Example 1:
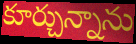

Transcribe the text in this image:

కూర్చున్నాను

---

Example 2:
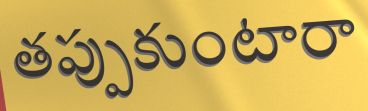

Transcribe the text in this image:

తప్పుకుంటారా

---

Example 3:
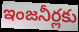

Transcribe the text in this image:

ఇంజనీర్లకు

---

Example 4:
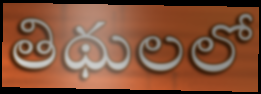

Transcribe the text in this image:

తిథులలో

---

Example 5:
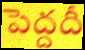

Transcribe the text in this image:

పెద్దదీ